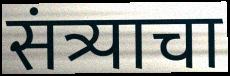
संत्र्याचा